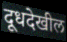
दूधदेखील